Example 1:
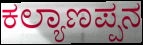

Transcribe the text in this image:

ಕಲ್ಯಾಣಪ್ಪನ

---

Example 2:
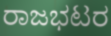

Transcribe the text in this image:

ರಾಜಭಟರ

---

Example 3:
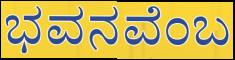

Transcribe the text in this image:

ಭವನವೆಂಬ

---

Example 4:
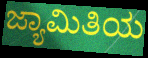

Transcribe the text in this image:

ಜ್ಯಾಮಿತಿಯ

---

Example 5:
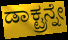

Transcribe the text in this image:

ಡಾಕ್ಟ್ರನ್ನೇ